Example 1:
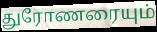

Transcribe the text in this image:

துரோணரையும்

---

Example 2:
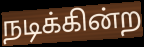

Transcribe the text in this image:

நடிக்கின்ற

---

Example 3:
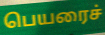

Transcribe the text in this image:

பெயரைச்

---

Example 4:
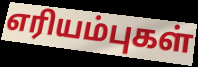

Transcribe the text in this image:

எரியம்புகள்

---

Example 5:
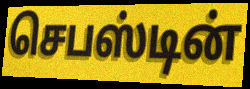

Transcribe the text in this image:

செபஸ்டின்